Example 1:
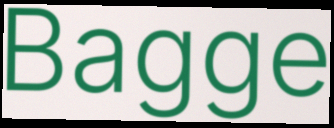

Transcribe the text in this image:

Bagge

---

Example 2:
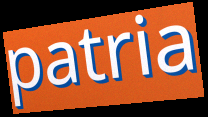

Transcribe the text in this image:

patria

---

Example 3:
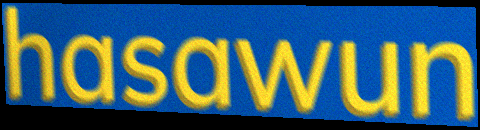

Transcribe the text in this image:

hasawun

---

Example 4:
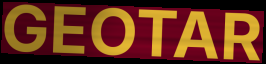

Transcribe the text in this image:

GEOTAR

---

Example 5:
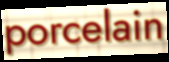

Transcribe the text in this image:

porcelain